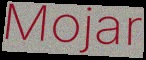
Mojar